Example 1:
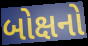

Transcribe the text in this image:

બોક્ષનો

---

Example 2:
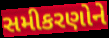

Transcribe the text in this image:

સમીકરણોને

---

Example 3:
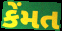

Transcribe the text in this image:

કેંમત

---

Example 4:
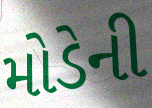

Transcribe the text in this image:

મોડેની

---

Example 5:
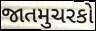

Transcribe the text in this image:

જાતમુચરકો